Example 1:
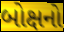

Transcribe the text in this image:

બોક્ષનો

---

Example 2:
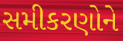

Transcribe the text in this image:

સમીકરણોને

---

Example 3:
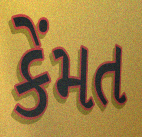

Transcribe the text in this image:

કેંમત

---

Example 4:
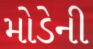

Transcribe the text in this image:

મોડેની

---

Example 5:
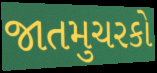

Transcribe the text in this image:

જાતમુચરકો